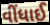
વીંધાઈ